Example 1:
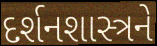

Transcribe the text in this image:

દર્શનશાસ્ત્રને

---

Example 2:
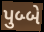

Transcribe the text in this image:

પુબ્બે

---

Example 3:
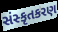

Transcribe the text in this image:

સંસ્કૃતકરણ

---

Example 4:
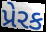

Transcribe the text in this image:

પ્રેરક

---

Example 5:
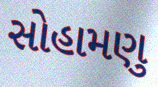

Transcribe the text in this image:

સોહામણુ